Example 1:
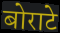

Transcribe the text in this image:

बोराटे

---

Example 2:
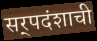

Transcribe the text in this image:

सर्पदंशाची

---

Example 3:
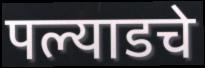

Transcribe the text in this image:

पल्याडचे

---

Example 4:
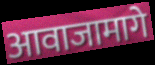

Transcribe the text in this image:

आवाजामागे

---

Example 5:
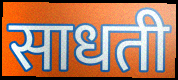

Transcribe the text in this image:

साधती